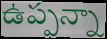
ఉప్పన్నా